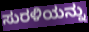
ಸುರಳಿಯನ್ನು